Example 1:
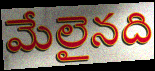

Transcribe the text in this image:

మేలైనది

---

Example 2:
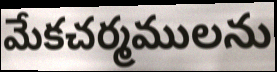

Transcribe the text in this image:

మేకచర్మములను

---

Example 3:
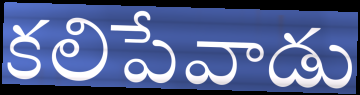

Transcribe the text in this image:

కలిపేవాడు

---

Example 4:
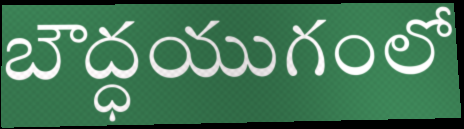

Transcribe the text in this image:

బౌద్ధయుగంలో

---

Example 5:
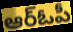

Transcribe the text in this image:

ఆర్ఓపీ